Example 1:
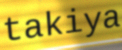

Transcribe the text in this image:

takiya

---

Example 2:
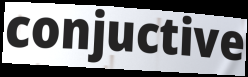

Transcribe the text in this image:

conjuctive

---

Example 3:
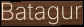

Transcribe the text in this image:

Batagur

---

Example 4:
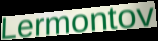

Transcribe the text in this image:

Lermontov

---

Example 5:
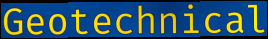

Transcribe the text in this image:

Geotechnical